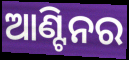
ଆଣ୍ଟିନର